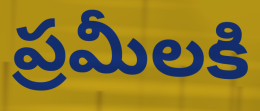
ప్రమీలకి